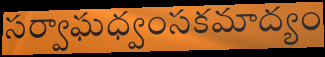
సర్వాఘధ్వంసకమాద్యం